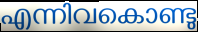
എന്നിവകൊണ്ടു